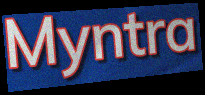
Myntra